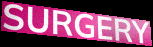
SURGERY